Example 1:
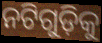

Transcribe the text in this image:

ନଟିଗୁଡ଼ିକୁ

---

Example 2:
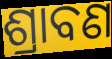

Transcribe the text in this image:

ଶ୍ରାବଣ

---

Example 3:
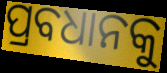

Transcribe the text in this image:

ପ୍ରବଧାନକୁ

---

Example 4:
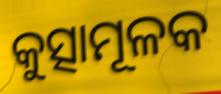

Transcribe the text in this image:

କୁତ୍ସାମୂଳକ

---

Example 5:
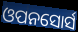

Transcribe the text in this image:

ଓପନସୋର୍ସ